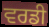
ਵਰਡੀ